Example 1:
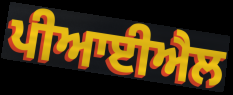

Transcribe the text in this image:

ਪੀਆਈਐਲ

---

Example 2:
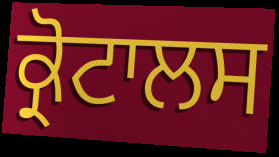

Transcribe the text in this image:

ਕ੍ਰੋਟਾਲਸ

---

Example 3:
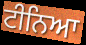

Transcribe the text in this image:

ਟੀਨਿਆ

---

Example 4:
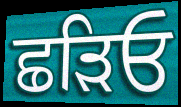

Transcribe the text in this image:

ਛੜਿਓ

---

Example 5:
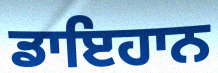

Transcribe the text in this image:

ਡਾਇਹਾਨ